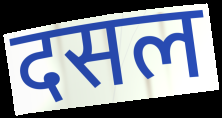
दसल